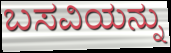
ಬಸವಿಯನ್ನು